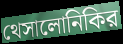
থেসালোনিকির